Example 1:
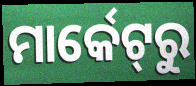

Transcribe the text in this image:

ମାର୍କେଟ୍‌ରୁ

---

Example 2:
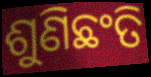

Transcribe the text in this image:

ଶୁଣିଛଂତି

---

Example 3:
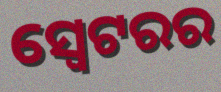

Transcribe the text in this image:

ସ୍ୱେଟରର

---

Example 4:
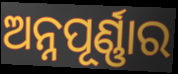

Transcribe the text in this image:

ଅନ୍ନପୂର୍ଣ୍ଣାର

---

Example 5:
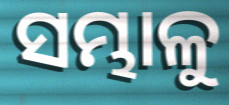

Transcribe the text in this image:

ସମ୍ଭାଳୁ